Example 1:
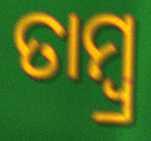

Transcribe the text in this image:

ତାମ୍ବ୍ର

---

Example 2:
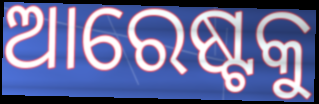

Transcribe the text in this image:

ଆରେଷ୍ଟକୁ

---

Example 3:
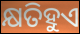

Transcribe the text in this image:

କ୍ଷତିହୁଏ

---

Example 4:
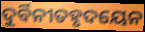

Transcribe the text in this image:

ଦୁର୍ବିନୀତହୃଦୟେନ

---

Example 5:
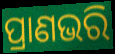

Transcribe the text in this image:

ପ୍ରାଣଭରି